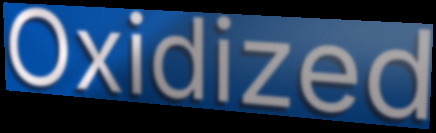
Oxidized